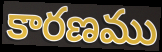
కారణము